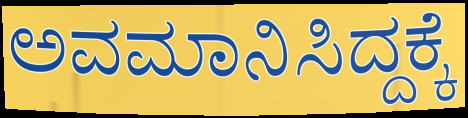
ಅವಮಾನಿಸಿದ್ದಕ್ಕೆ